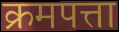
क्रमपत्ता